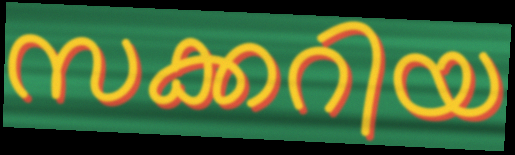
സക്കറിയ